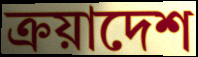
ক্রয়াদেশ